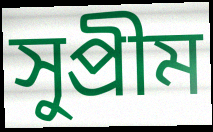
সুপ্রীম